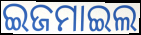
ଇଜମାଇଲ